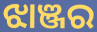
ଝାଞ୍ଜର